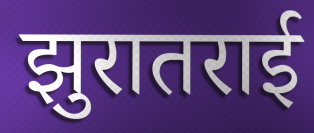
झुरातराई